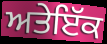
ਅਤੇਇੱਕ